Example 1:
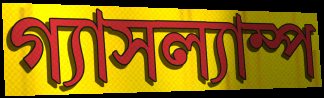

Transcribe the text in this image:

গ্যাসল্যাম্প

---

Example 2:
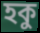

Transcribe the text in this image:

হকু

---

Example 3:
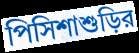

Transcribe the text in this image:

পিসিশাশুড়ির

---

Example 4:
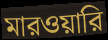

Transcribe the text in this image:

মারওয়ারি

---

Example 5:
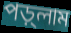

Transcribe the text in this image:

পড়্‌লাম